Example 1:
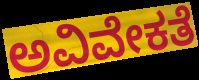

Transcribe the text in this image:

ಅವಿವೇಕತೆ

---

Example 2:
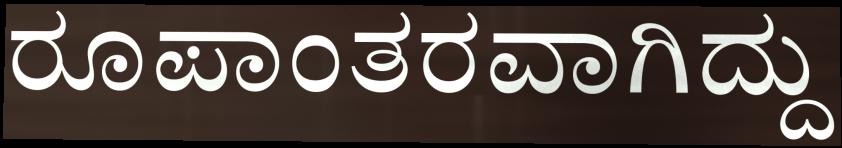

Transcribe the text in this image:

ರೂಪಾಂತರವಾಗಿದ್ದು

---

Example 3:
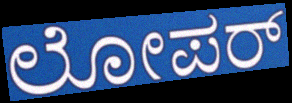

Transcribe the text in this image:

ಲೋಪರ್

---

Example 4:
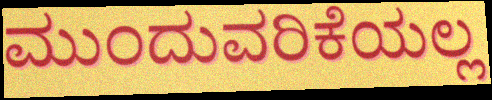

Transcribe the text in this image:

ಮುಂದುವರಿಕೆಯಲ್ಲ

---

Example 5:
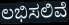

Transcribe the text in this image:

ಲಭಿಸಲಿವೆ